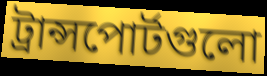
ট্রান্সপোর্টগুলো